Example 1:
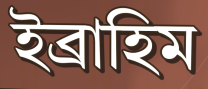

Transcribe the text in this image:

ইব্ৰাহিম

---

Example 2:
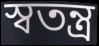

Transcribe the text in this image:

স্বতন্ত্ৰ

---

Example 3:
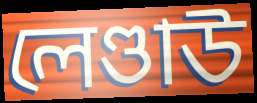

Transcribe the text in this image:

লেণ্ডাউ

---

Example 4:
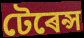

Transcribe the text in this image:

টেৰেন্স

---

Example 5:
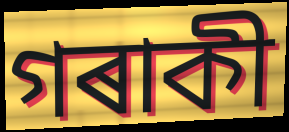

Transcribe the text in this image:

গৰাকী